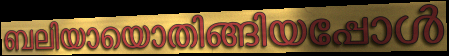
ബലിയായൊതിങ്ങിയപ്പോൾ